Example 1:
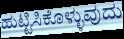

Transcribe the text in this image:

ಹುಟ್ಟಿಸಿಕೊಳ್ಳುವುದು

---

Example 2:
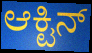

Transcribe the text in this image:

ಆಕ್ಟಿನ್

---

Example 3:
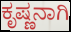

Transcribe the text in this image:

ಕೃಷ್ಣನಾಗಿ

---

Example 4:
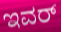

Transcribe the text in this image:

ಇವರ್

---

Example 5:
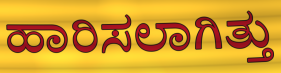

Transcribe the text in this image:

ಹಾರಿಸಲಾಗಿತ್ತು